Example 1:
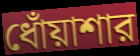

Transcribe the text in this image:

ধোঁয়াশার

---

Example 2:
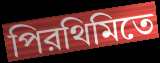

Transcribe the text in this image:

পিরথিমিতে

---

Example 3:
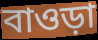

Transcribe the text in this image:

বাওড়া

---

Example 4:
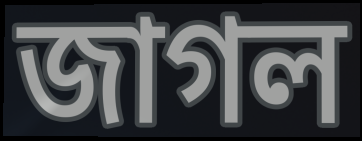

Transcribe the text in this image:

জাগল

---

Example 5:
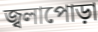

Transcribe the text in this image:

জ্বলাপোড়া